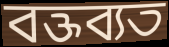
বক্তব্যত